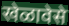
खेळावेसे